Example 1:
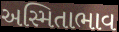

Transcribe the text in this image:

અસ્મિતાભાવ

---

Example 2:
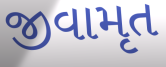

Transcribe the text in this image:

જીવામૃત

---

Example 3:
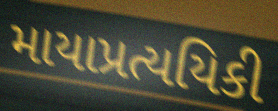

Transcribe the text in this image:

માયાપ્રત્યયિકી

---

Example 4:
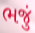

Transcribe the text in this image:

ભજું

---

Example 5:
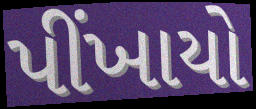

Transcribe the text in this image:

પીંખાયો